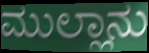
ಮುಲ್ಲಾನು